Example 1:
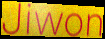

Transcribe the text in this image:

Jiwon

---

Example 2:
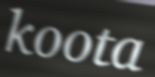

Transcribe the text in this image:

koota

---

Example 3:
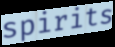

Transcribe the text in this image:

spirits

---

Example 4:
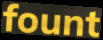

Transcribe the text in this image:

fount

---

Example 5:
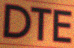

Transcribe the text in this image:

DTE